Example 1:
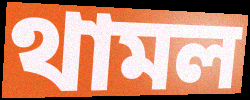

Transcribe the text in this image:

থামল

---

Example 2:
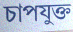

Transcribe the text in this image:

চাপযুক্ত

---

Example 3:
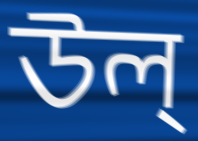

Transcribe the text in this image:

উল্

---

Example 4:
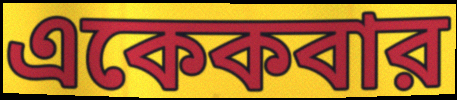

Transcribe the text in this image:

একেকবার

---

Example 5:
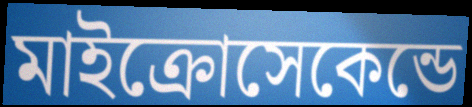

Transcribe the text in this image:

মাইক্রোসেকেন্ডে